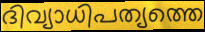
ദിവ്യാധിപത്യത്തെ